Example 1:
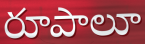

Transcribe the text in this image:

రూపాలూ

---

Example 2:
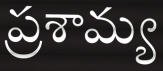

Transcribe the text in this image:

ప్రశామ్య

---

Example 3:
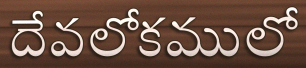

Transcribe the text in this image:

దేవలోకములో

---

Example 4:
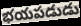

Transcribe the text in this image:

భయపడుడు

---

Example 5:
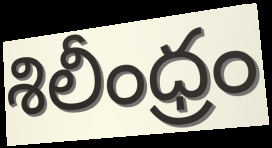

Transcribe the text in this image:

శిలీంధ్రం